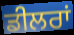
ਡੀਲਰਾਂ